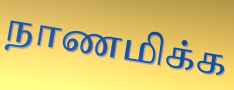
நாணமிக்க